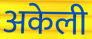
अकेली